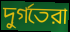
দুর্গতেরা